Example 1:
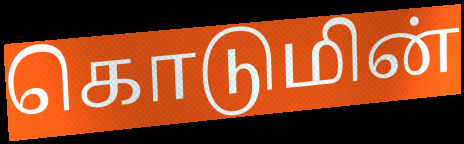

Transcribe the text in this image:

கொடுமின்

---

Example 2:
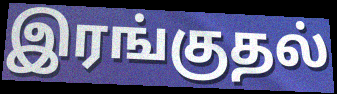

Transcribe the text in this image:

இரங்குதல்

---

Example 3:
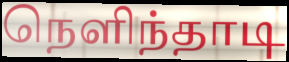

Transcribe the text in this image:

நெளிந்தாடி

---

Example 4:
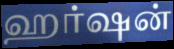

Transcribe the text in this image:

ஹர்ஷன்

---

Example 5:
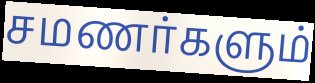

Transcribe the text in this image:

சமணர்களும்